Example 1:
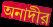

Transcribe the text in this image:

অনাদীর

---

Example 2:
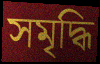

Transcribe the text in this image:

সমৃদ্ধি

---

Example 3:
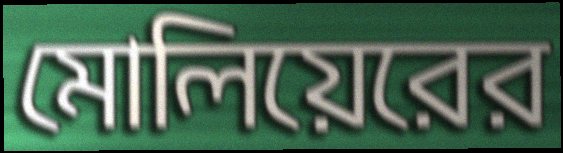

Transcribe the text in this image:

মোলিয়েরের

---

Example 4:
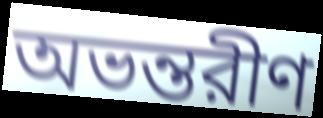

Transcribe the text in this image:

অভন্তরীণ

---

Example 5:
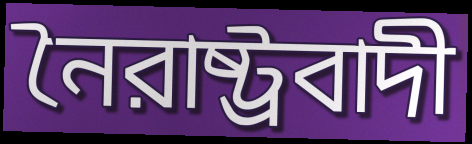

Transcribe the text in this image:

নৈরাষ্ট্রবাদী